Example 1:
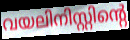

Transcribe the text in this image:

വയലിനിസ്റ്റിന്റെ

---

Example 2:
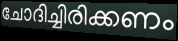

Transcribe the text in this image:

ചോദിച്ചിരിക്കണം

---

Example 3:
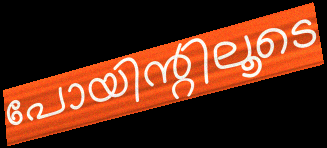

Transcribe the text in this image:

പോയിന്റിലൂടെ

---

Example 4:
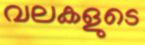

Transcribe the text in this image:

വലകളുടെ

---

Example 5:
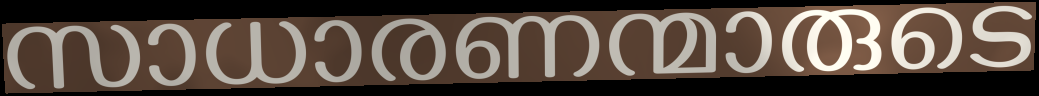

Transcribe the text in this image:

സാധാരണന്മാരുടെ